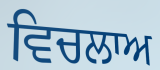
ਵਿਚਲਾਅ